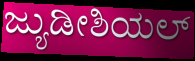
ಜ್ಯುಡೀಶಿಯಲ್